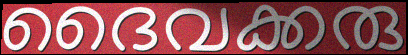
ദൈവക്കരു